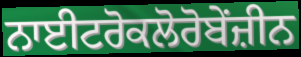
ਨਾਈਟਰੋਕਲੋਰੋਬੇਂਜ਼ੀਨ